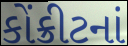
કોંક્રીટનાં